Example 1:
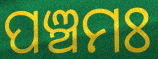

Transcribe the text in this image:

ପଞ୍ଚମଃ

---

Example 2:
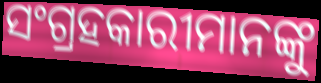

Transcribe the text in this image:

ସଂଗ୍ରହକାରୀମାନଙ୍କୁ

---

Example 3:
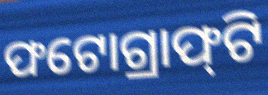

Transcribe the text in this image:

ଫଟୋଗ୍ରାଫ୍‌ଟି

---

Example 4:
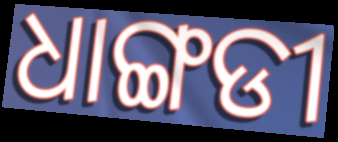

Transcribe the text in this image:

ଧାଙ୍ଗଡୀ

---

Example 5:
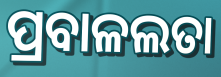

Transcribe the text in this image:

ପ୍ରବାଳଲତା